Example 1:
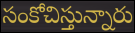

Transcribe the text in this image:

సంకోచిస్తున్నారు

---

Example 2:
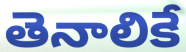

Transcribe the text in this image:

తెనాలికే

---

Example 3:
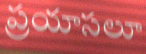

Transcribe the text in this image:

ప్రయాసలూ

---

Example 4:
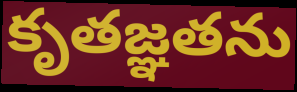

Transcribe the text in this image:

కృతజ్ఞతను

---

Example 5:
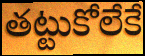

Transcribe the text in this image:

తట్టుకోలేకే